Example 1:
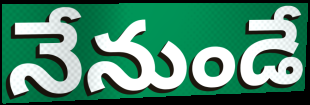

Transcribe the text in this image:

నేనుండే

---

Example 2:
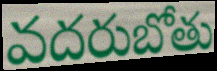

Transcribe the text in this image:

వదరుబోతు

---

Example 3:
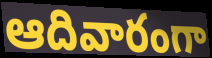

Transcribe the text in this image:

ఆదివారంగా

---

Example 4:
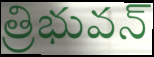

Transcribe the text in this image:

త్రిభువన్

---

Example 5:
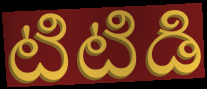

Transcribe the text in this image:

టిటిడి